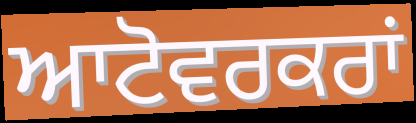
ਆਟੋਵਰਕਰਾਂ